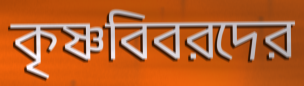
কৃষ্ণবিবরদের